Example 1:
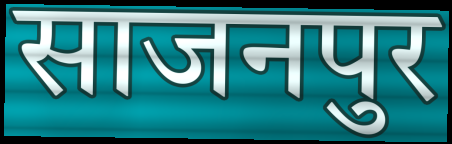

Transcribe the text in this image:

साजनपुर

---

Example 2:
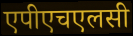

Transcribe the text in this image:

एपीएचएलसी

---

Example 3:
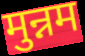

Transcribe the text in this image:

मुन्नम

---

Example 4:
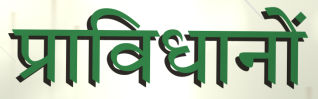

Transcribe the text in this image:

प्राविधानों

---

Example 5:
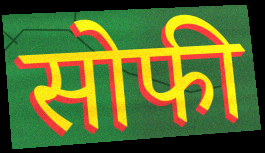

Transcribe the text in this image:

सोफी